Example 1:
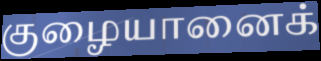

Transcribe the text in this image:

குழையானைக்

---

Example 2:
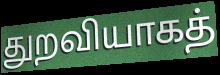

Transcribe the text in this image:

துறவியாகத்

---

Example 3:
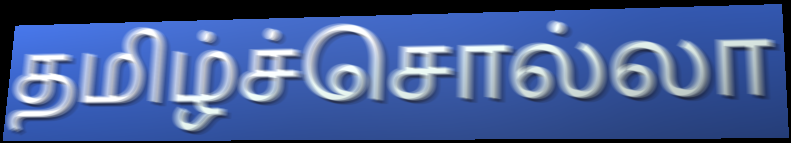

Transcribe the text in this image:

தமிழ்ச்சொல்லா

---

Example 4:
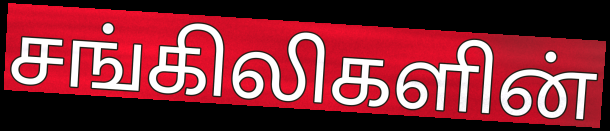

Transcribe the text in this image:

சங்கிலிகளின்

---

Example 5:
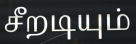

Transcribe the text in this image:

சீறடியும்